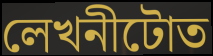
লেখনীটোত